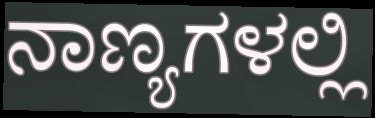
ನಾಣ್ಯಗಳಲ್ಲಿ